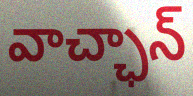
వాచ్ఛాన్